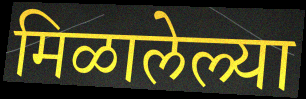
मिळालेल्या